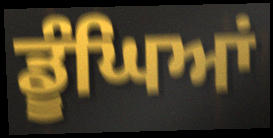
ਡੂੰਘਿਆਂ